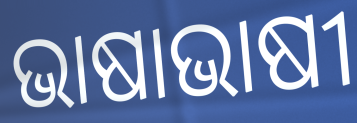
ଭାଷାଭାଷୀ